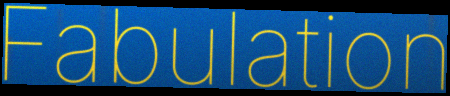
Fabulation